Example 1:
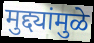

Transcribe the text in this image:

मुद्द्यांमुळे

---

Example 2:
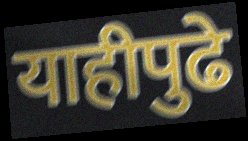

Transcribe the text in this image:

याहीपुढे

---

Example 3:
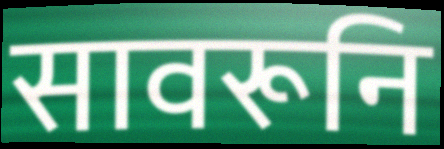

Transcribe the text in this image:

सावरूनि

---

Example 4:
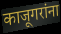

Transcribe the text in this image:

काजूगरांना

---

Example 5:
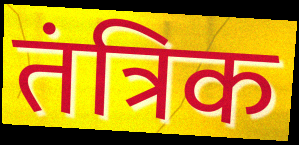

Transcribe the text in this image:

तंत्रिक